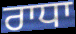
ਰਾਧਾ